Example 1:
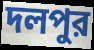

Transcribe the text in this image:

দলপুর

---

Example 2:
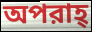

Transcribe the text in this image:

অপরাহ্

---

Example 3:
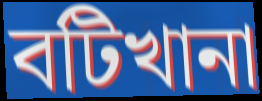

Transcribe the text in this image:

বটিখানা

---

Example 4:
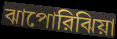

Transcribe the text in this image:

ঝাপোরিঝিয়া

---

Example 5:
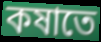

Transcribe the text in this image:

কষাতে